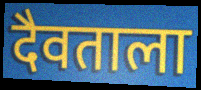
दैवताला